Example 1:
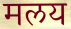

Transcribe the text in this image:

मलय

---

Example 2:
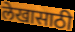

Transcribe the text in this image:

लेखासाठी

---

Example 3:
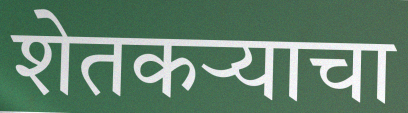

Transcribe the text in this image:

शेतकऱ्याचा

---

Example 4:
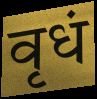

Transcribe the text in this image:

वृधं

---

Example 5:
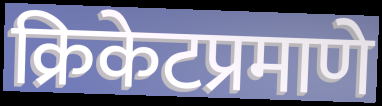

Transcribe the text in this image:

क्रिकेटप्रमाणे